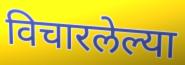
विचारलेल्या